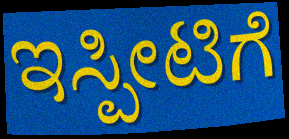
ಇಸ್ಪೀಟಿಗೆ